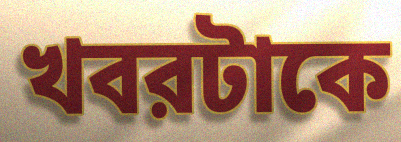
খবরটাকে